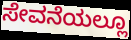
ಸೇವನೆಯಲ್ಲೂ